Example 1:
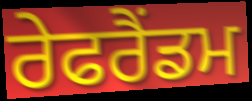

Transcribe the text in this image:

ਰੇਫਰੈਂਡਮ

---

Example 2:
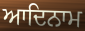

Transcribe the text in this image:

ਆਦਿਨਾਮ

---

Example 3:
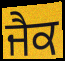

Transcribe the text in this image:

ਜੈਕ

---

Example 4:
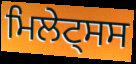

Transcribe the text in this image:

ਮਿਲੇਟ੍ਸਸ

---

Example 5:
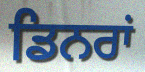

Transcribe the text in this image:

ਡਿਨਰਾਂ